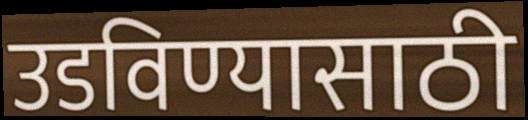
उडविण्यासाठी